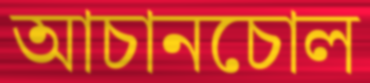
আচানচোল